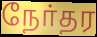
நேர்தர